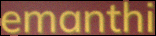
emanthi